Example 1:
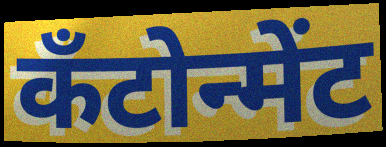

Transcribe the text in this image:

कँटोन्मेंट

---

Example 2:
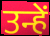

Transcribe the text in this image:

उन्हें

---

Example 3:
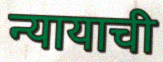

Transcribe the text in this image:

न्यायाची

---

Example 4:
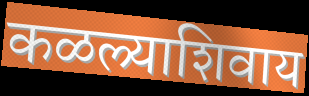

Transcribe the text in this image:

कळल्याशिवाय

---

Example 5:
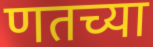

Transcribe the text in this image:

णतच्या